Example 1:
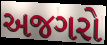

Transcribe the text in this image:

અજગરો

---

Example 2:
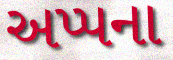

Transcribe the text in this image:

અપ્પના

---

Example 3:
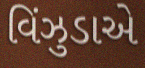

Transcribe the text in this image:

વિંઝુડાએ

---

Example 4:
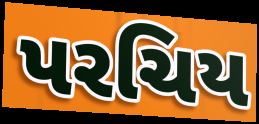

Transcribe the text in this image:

પરચિય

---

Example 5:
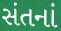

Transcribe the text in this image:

સંતનાં